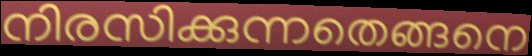
നിരസിക്കുന്നതെങ്ങനെ